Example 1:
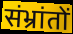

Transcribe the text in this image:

संभ्रांतों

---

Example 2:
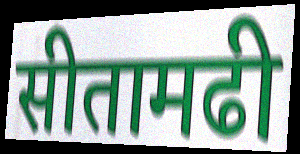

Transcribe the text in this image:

सीतामढी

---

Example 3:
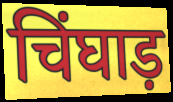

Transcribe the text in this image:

चिंघाड़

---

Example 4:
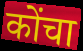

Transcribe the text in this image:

कोंचा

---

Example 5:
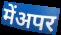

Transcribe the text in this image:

मेंअपर